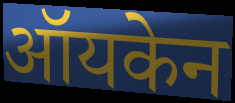
ऑयकेन